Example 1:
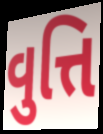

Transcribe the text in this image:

વુત્તિ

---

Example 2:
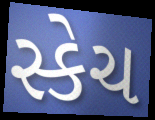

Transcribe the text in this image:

સ્કેચ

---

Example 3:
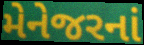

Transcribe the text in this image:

મેનેજરનાં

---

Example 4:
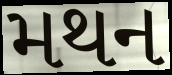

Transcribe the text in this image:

મથન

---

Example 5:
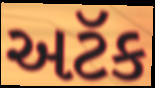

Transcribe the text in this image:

અટૅક